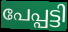
പേപ്പട്ടി